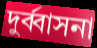
দুর্ব্বাসনা